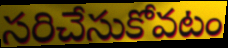
సరిచేసుకోవటం